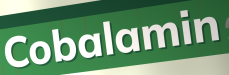
Cobalamin